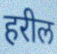
हरील